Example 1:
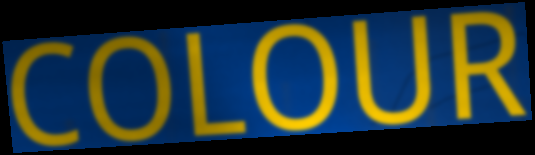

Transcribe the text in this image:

COLOUR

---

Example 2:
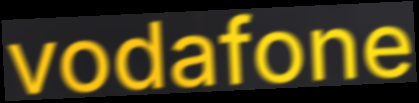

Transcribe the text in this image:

vodafone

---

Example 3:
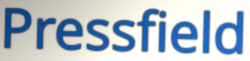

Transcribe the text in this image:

Pressfield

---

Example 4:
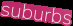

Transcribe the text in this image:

suburbs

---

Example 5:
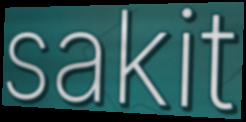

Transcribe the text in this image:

sakit